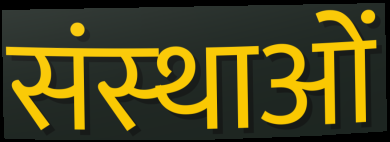
संस्‍थाओं